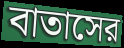
বাতাসের